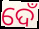
ଦେଁ